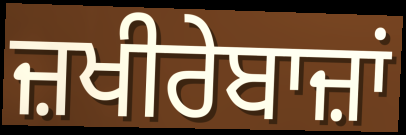
ਜ਼ਖੀਰੇਬਾਜ਼ਾਂ